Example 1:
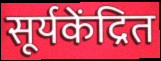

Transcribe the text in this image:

सूर्यकेंद्रित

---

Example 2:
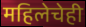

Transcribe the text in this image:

महिलेचेही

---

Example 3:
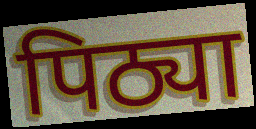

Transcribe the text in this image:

पिठ्या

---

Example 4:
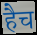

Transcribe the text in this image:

हैच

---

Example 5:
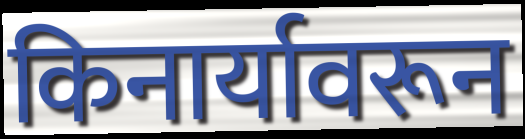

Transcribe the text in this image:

किनार्यावरून